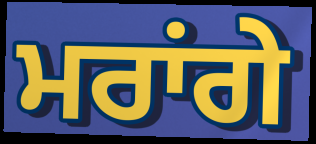
ਮਰਾਂਗੇ